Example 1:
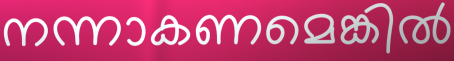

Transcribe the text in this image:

നന്നാകണമെങ്കിൽ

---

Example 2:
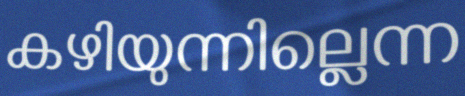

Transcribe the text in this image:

കഴിയുന്നില്ലെന്ന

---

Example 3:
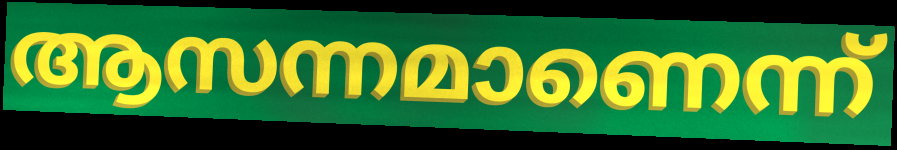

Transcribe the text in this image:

ആസന്നമാണെന്ന്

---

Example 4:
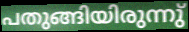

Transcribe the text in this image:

പതുങ്ങിയിരുന്നു്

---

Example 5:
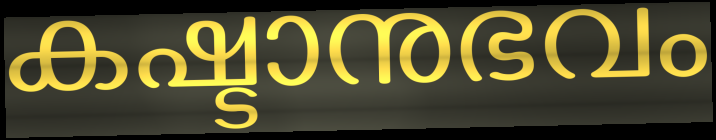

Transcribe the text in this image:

കഷ്ടാനുഭവം